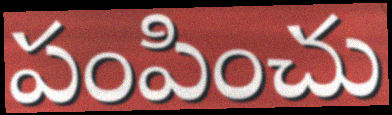
పంపించు